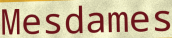
Mesdames